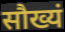
सौख्यं